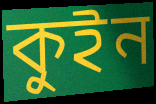
কুইন